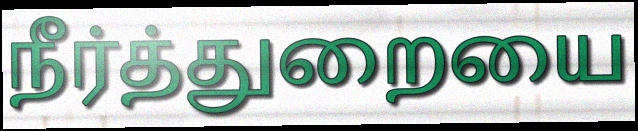
நீர்த்துறையை